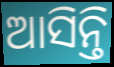
ଆସିନ୍ତି